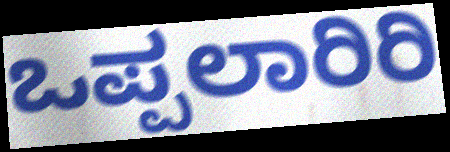
ಒಪ್ಪಲಾರಿರಿ